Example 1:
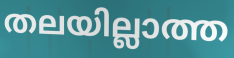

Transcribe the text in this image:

തലയില്ലാത്ത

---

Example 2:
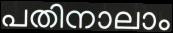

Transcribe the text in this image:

പതിനാലാം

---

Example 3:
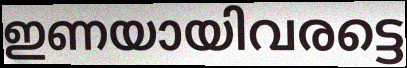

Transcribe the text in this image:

ഇണയായിവരട്ടെ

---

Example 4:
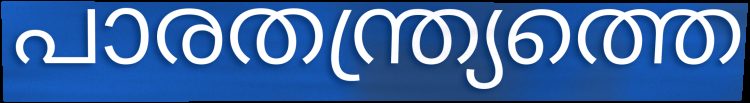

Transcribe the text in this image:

പാരതന്ത്ര്യത്തെ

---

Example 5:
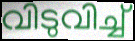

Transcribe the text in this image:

വിടുവിച്ച്